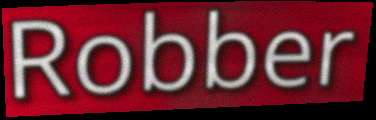
Robber